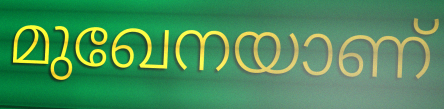
മുഖേനയാണ്